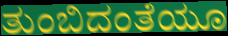
ತುಂಬಿದಂತೆಯೂ